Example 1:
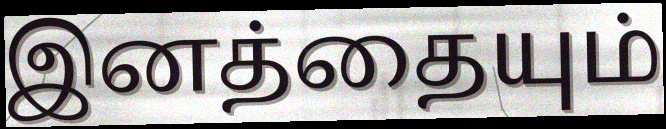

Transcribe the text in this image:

இனத்தையும்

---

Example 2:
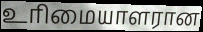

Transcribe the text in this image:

உரிமையாளரான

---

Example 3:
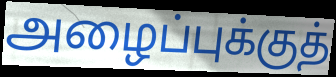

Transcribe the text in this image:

அழைப்புக்குத்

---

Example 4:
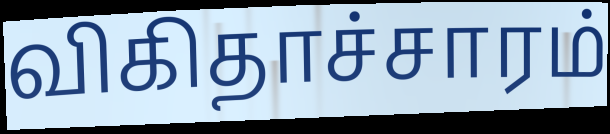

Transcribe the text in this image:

விகிதாச்சாரம்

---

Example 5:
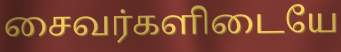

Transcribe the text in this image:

சைவர்களிடையே